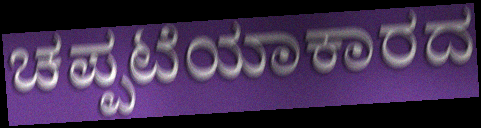
ಚಪ್ಪಟೆಯಾಕಾರದ